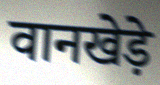
वानखेड़े